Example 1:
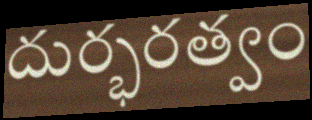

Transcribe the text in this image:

దుర్భరత్వం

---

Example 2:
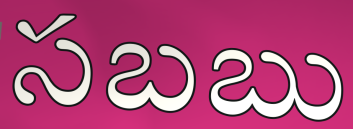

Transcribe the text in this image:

సబబు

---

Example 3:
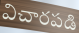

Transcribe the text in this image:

విచారపడి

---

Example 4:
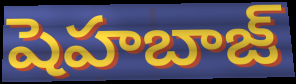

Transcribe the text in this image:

షెహబాజ్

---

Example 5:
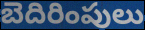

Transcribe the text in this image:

బెదిరింపులు